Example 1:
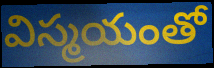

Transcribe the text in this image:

విస్మయంతో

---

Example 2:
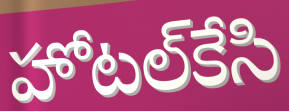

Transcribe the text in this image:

హోటల్‌కేసి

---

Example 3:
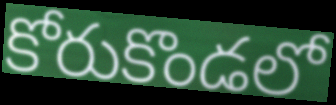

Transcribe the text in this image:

కోరుకొండలో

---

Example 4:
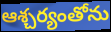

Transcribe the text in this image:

ఆశ్చర్యంతోను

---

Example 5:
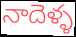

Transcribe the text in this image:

నాదెళ్ళ